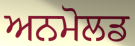
ਅਨਮੋਲਡ